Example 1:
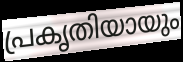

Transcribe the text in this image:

പ്രകൃതിയായും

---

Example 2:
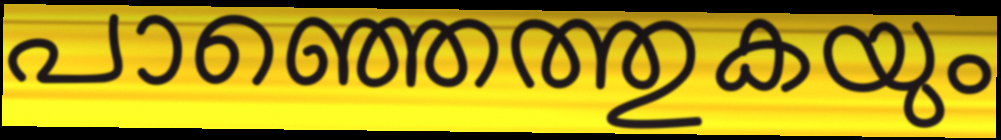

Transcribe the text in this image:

പാഞ്ഞെത്തുകയും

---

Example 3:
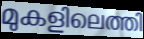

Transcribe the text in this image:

മുകളിലെത്തി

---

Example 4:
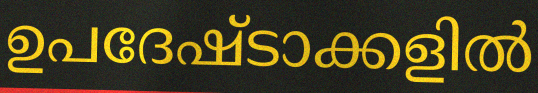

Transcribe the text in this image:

ഉപദേഷ്ടാക്കളിൽ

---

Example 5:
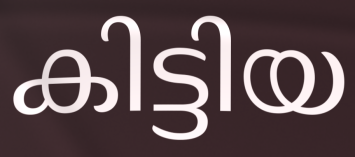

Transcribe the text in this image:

കിട്ടിയ